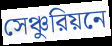
সেঞ্চুরিয়নে